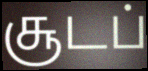
சூடப்